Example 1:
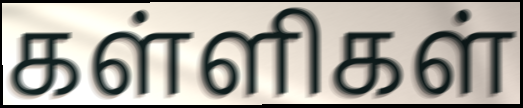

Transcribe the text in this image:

கள்ளிகள்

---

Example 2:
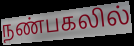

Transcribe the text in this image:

நண்பகலில்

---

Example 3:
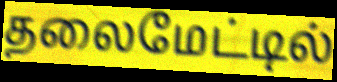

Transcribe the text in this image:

தலைமேட்டில்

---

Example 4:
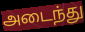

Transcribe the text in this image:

அடைந்து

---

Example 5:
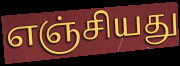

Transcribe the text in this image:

எஞ்சியது